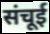
संचूई